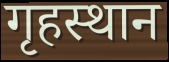
गृहस्थान